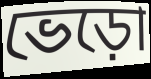
ভেড়ো